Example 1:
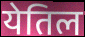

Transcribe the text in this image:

येतिल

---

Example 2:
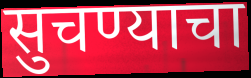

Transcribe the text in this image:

सुचण्याचा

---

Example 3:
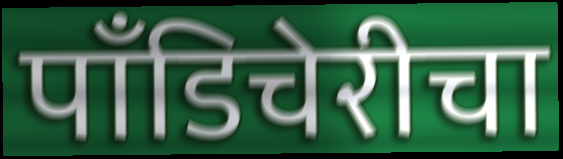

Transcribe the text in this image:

पाँडिचेरीचा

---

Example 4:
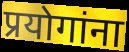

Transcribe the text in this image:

प्रयोगांना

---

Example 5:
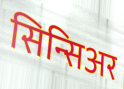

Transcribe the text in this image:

सिन्सिअर